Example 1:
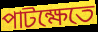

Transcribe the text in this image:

পাটক্ষেতে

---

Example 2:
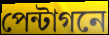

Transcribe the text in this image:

পেন্টাগনে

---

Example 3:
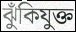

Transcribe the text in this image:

ঝুঁকিযুক্ত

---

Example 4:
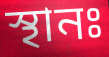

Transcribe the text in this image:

স্থানঃ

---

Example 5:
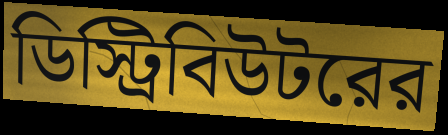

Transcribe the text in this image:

ডিস্ট্রিবিউটরের